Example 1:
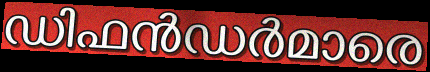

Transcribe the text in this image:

ഡിഫൻഡർമാരെ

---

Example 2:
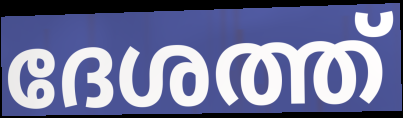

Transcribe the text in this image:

ദേശത്ത്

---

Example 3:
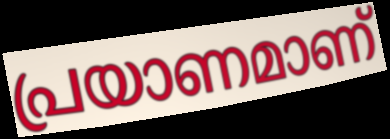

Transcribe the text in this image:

പ്രയാണമാണ്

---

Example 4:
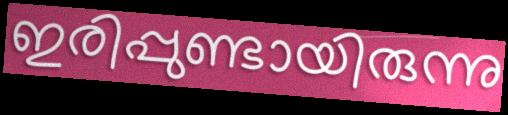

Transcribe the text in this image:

ഇരിപ്പുണ്ടായിരുന്നു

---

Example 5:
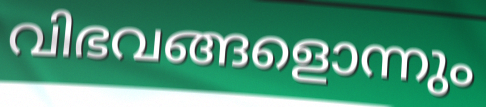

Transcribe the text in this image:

വിഭവങ്ങളൊന്നും